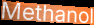
Methanol